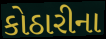
કોઠારીના